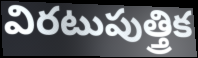
విరటుపుత్త్రిక